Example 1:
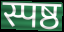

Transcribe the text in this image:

स्पष्ठ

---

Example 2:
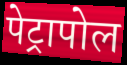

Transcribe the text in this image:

पेट्रापोल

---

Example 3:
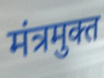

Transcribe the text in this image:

मंत्रमुक्त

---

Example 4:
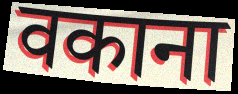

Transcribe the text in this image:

वकाना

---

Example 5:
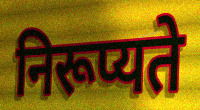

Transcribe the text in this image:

निरूप्यते